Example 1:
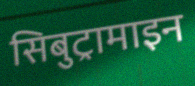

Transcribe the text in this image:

सिबुट्रामाइन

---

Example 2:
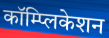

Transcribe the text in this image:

कॉम्प्लिकेशन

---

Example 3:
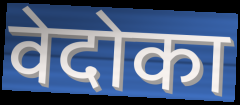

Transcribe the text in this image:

वेदोका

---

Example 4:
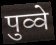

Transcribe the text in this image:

पुव्वे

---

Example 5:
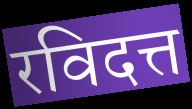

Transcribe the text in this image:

रविदत्त